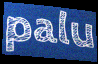
palu